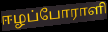
ஈழப்போராளி